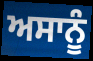
ਅਸਾਨੂੰ